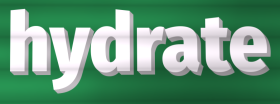
hydrate